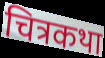
चित्रकथा